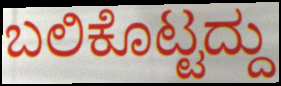
ಬಲಿಕೊಟ್ಟದ್ದು